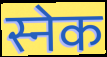
स्‍नेक